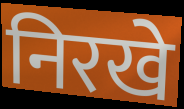
निरखे